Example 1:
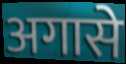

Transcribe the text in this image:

अगासे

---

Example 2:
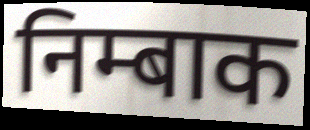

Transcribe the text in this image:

निम्बाक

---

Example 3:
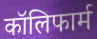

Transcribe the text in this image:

कॉलिफार्म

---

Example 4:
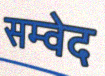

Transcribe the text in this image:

सम्वेद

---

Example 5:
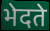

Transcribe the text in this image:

भेदते